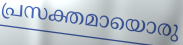
പ്രസക്തമായൊരു